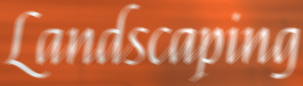
Landscaping